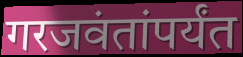
गरजवंतांपर्यंत